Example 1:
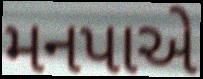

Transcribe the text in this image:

મનપાએ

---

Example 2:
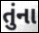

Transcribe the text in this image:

તુંના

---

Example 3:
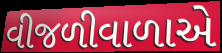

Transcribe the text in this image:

વીજળીવાળાએ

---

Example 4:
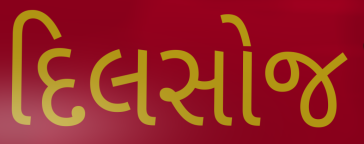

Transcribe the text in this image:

દિલસોજ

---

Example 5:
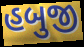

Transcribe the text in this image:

હબુજી